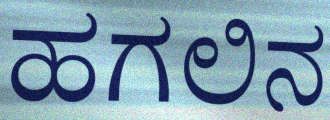
ಹಗಲಿನ